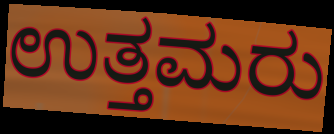
ಉತ್ತಮರು